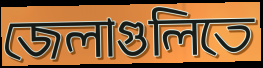
জেলাগুলিতে